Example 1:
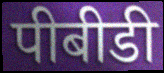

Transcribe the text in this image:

पीबीडी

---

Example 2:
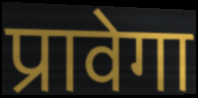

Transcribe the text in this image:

प्रावेगा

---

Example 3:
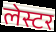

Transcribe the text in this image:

लेस्टर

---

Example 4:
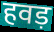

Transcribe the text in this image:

हवड़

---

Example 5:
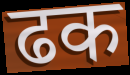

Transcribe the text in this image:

ढक